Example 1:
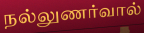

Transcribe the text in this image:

நல்லுணர்வால்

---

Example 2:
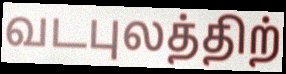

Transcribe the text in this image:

வடபுலத்திற்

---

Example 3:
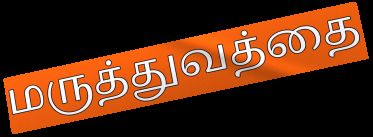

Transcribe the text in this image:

மருத்துவத்தை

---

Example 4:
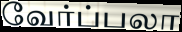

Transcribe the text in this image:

வேர்ப்பலா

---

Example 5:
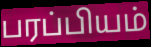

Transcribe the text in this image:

பரப்பியம்